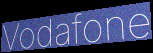
Vodafone